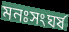
মনঃসংঘর্ষ